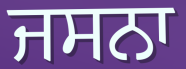
ਜਸਨਾ